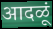
आदळूं